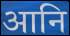
आनि